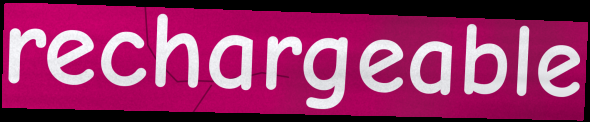
rechargeable